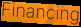
Financing